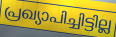
പ്രഖ്യാപിച്ചിട്ടില്ല